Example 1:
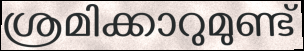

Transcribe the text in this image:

ശ്രമിക്കാറുമുണ്ട്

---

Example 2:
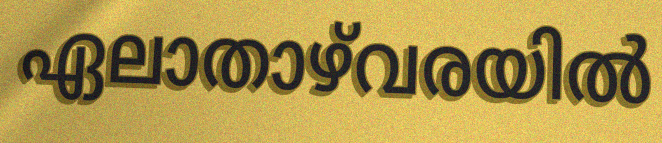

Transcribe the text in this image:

ഏലാതാഴ്‌വരയിൽ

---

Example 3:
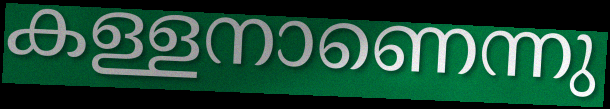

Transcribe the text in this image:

കള്ളനാണെന്നു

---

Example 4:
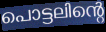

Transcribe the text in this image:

പൊട്ടലിന്റെ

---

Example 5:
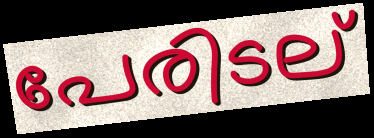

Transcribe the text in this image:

പേരിടല്